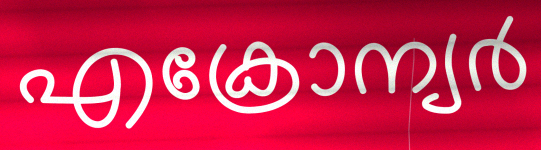
എക്രോന്യർ